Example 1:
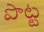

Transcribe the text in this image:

పొట్ట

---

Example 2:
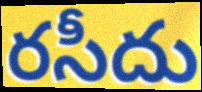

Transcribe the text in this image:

రసీదు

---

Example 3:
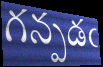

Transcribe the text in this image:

గన్పడఁ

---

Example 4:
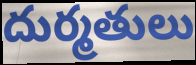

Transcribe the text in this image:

దుర్మతులు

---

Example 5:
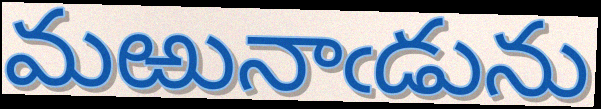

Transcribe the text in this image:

మఱునాఁడును